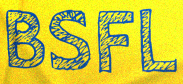
BSFL